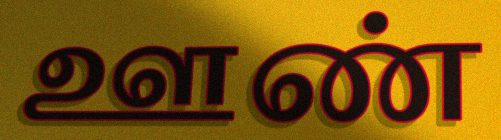
ஊண்